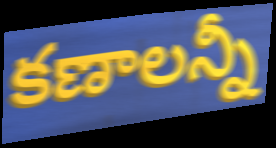
కణాలన్నీ